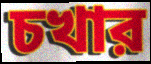
চখার